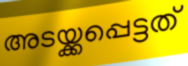
അടയ്ക്കപ്പെട്ടത്